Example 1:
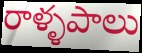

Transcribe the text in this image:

రాళ్ళపాలు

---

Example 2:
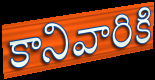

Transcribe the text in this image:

కానివారికి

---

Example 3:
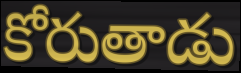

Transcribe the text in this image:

కోరుతాడు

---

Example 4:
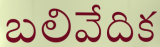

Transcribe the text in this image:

బలివేదిక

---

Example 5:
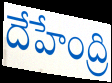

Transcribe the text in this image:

దేహేంద్రి